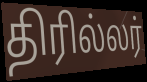
திரில்லர்